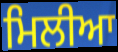
ਮਿਲੀਆ